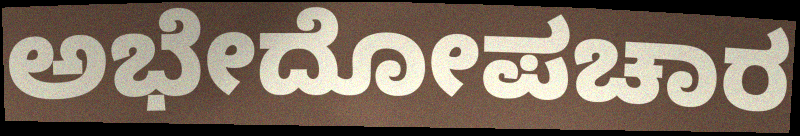
ಅಭೇದೋಪಚಾರ